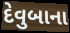
દેવુબાના